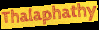
Thalaphathy